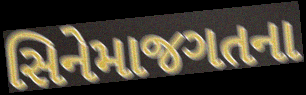
સિનેમાજગતના